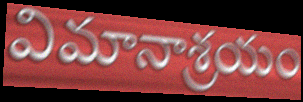
విమానాశ్రయం